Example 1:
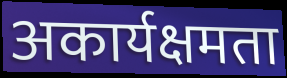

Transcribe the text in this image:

अकार्यक्षमता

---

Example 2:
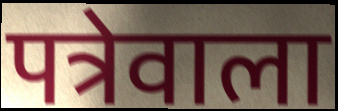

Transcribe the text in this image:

पत्रेवाला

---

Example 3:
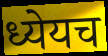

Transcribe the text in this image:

ध्येयच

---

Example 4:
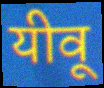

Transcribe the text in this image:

यीवू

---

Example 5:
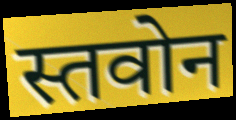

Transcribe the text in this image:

स्तवोन